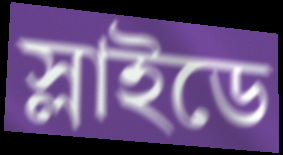
স্লাইডে